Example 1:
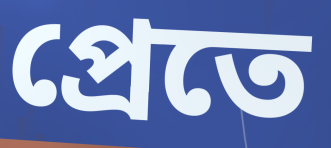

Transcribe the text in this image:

প্রেতে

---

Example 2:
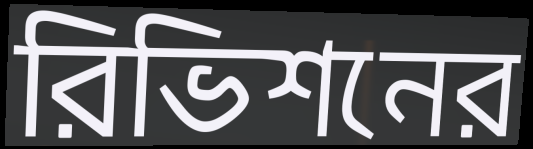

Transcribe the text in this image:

রিভিশনের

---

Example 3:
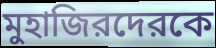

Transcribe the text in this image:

মুহাজিরদেরকে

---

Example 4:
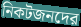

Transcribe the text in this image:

নিকটজনদের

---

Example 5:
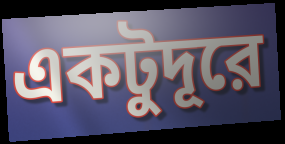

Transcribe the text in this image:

একটুদূরে